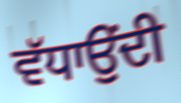
ਵੱਧਾਉਂਦੀ